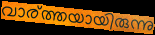
വാര്ത്തയായിരുന്നു